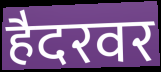
हैदरवर